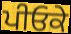
ਪੀਓਕੇ